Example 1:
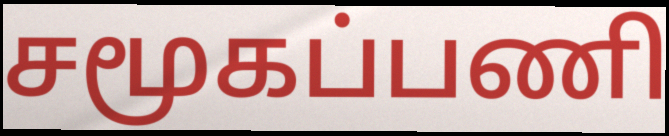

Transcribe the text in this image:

சமூகப்பணி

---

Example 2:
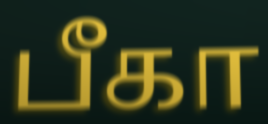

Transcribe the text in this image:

பீகா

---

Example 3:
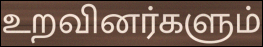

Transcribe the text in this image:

உறவினர்களும்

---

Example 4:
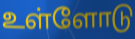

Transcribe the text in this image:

உள்ளோடு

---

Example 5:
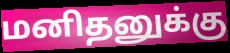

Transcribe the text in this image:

மனிதனுக்கு